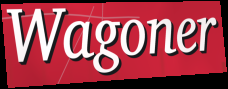
Wagoner